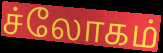
ச்லோகம்